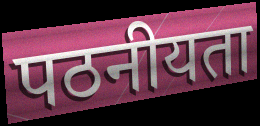
पठनीयता